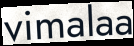
vimalaa